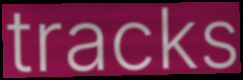
tracks